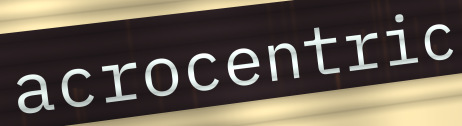
acrocentric